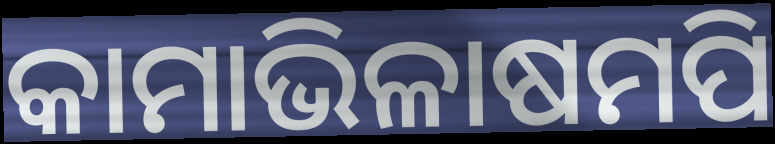
କାମାଭିଳାଷମପି